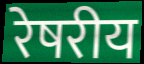
रेषरीय